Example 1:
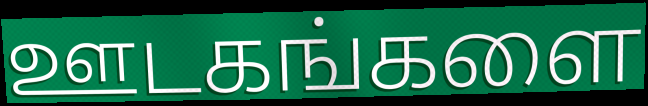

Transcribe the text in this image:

ஊடகங்களை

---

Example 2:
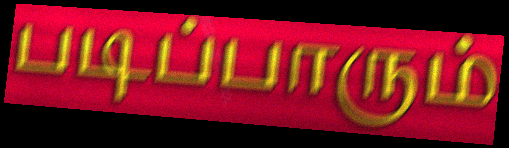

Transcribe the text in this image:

படிப்பாரும்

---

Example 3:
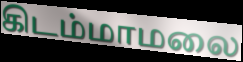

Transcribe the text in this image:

கிடம்மாமலை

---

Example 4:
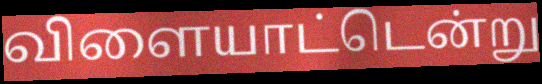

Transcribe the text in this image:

விளையாட்டென்று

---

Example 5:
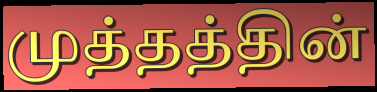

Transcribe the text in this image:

முத்தத்தின்